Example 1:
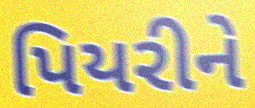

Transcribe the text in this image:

પિયરીને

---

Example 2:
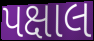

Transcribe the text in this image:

પક્ષાલ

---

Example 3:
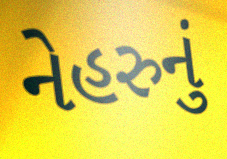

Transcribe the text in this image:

નેહરુનું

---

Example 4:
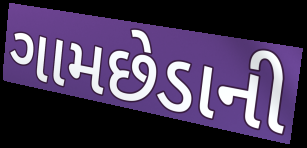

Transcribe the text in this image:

ગામછેડાની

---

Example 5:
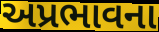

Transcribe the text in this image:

અપ્રભાવના